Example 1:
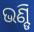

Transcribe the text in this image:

ଭଣ୍ଡି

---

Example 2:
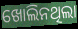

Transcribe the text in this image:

ଖୋଲିନଥିଲା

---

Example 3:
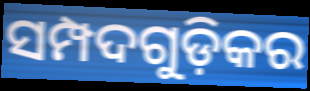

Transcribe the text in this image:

ସମ୍ପଦଗୁଡ଼ିକର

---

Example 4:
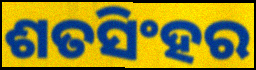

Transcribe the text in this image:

ଶତସିଂହର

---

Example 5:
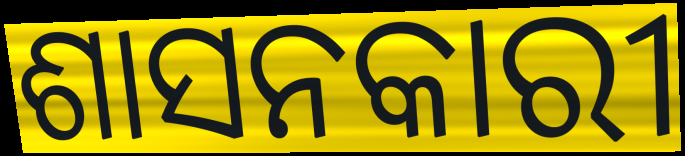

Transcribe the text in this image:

ଶାସନକାରୀ